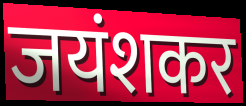
जयंशकर